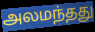
அலமந்தது